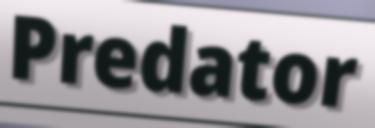
Predator